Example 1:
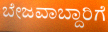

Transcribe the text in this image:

ಬೇಜವಾಬ್ದಾರಿಗೆ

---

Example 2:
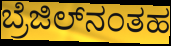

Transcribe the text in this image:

ಬ್ರೆಜಿಲ್‌ನಂತಹ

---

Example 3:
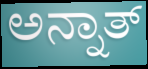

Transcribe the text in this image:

ಅನ್ನಾತ್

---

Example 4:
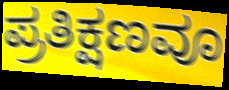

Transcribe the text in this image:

ಪ್ರತಿಕ್ಷಣವೂ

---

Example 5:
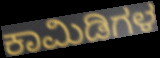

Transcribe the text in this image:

ಕಾಮಿಡಿಗಳ